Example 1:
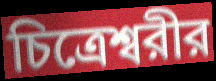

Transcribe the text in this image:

চিত্রেশ্বরীর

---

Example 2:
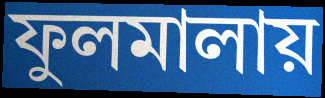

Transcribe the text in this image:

ফুলমালায়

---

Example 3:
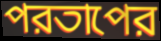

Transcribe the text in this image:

পরতাপের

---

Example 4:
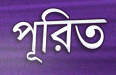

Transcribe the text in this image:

পূরিত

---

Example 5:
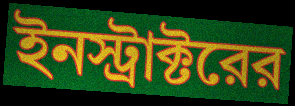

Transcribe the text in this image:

ইনস্ট্রাক্টরের